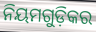
ନିୟମଗୁଡ଼ିକର